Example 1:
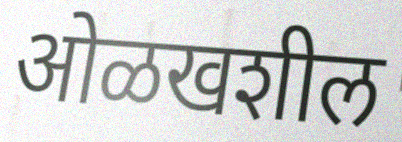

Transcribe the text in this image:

ओळखशील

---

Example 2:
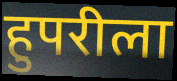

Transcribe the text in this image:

हुपरीला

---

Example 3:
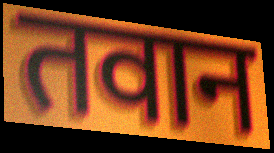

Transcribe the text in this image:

तवान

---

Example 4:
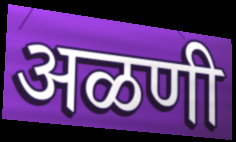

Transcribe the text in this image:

अळणी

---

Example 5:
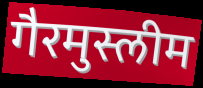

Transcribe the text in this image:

गैरमुस्लीम